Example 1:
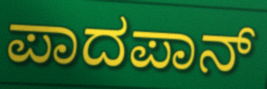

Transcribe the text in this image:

ಪಾದಪಾನ್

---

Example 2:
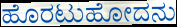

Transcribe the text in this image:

ಹೊರಟುಹೋದನು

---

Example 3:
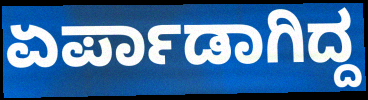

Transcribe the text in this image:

ಏರ್ಪಾಡಾಗಿದ್ದ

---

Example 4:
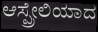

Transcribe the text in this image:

ಆಸ್ಪ್ರೇಲಿಯಾದ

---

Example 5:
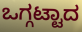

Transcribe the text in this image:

ಒಗ್ಗಟ್ಟಾದ